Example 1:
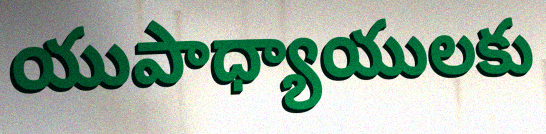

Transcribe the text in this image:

యుపాధ్యాయులకు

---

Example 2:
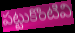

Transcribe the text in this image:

పట్టుకొంటివి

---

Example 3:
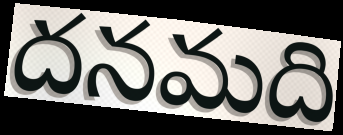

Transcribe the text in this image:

దనమది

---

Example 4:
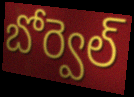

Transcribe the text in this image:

బోర్వెల్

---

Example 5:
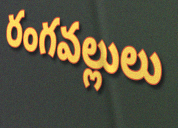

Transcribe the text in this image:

రంగవల్లులు